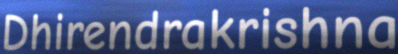
Dhirendrakrishna